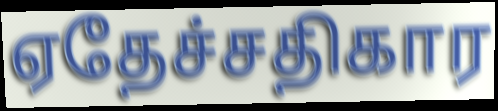
ஏதேச்சதிகார